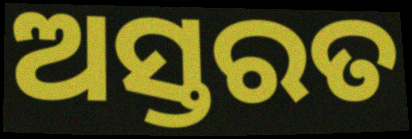
ଅସ୍ତରତ